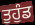
ਤੁਹੁੰਡ